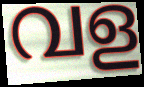
വള